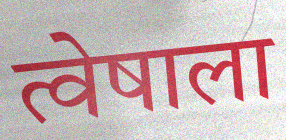
त्वेषाला